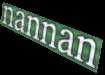
nannan